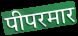
पीपरमार